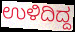
ಉಳಿದಿದ್ದ